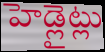
హెడ్లైట్లు